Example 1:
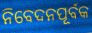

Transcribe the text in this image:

ନିବେଦନପୂର୍ବକ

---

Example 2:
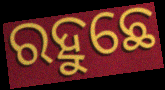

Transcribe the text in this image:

ରହୁଛେ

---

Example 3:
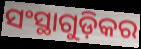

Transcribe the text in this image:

ସଂସ୍ଥାଗୁଡ଼ିକର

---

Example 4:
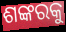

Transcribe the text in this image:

ଶଙ୍କରକୁ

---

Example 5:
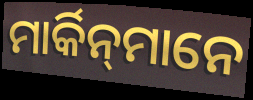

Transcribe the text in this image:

ମାର୍କିନ୍‌ମାନେ